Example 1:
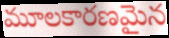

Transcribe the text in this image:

మూలకారణమైన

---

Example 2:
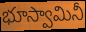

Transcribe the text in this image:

భూస్వామినీ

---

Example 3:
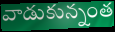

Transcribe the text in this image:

వాడుకున్నంత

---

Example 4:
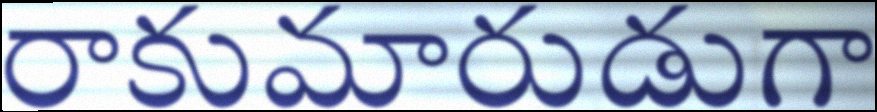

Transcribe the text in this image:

రాకుమారుడుగా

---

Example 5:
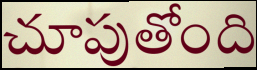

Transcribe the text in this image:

చూపుతోంది